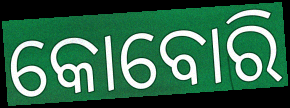
କୋବୋରି